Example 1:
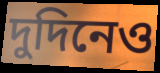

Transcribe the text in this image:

দুদিনেও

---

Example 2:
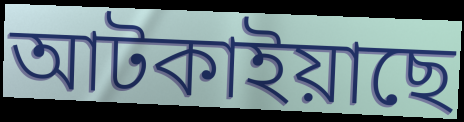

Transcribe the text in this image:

আটকাইয়াছে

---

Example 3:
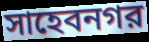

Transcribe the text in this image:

সাহেবনগর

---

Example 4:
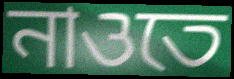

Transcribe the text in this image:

নাওতে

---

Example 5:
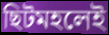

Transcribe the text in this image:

ছিটমহলেই